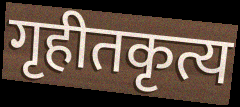
गृहीतकृत्य